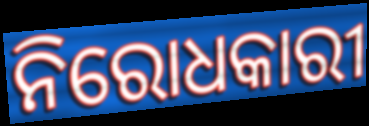
ନିରୋଧକାରୀ